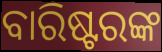
ବାରିଷ୍ଟରଙ୍କ